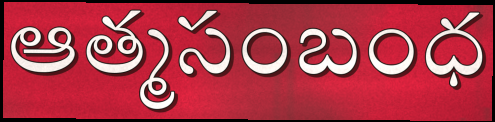
ఆత్మసంబంధ